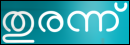
തുരന്ന്